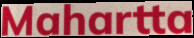
Mahartta